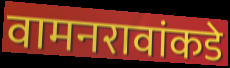
वामनरावांकडे